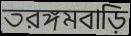
তরঙ্গমবাড়ি